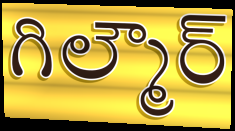
గిల్మౌర్